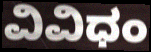
ವಿವಿಧಂ